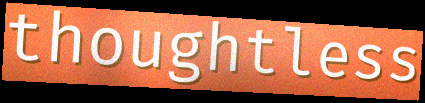
thoughtless